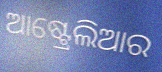
ଆଷ୍ଟ୍ରେଲିଆର